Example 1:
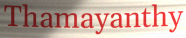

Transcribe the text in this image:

Thamayanthy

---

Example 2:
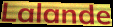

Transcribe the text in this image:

Lalande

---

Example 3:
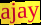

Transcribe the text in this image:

ajay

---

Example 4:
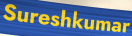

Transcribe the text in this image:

Sureshkumar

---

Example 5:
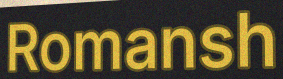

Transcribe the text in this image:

Romansh